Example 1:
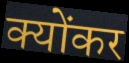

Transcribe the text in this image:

क्योंकर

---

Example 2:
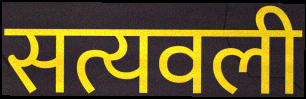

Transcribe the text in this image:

सत्यवली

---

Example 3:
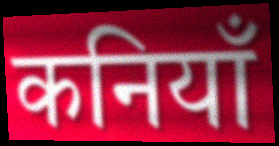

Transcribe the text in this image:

कनियाँ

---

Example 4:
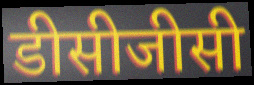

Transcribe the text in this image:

डीसीजीसी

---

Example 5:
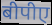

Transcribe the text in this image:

बीपीए